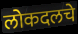
लोकदलचे